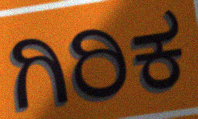
ಗಿರಿಕ